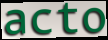
acto